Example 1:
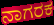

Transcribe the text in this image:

ನಾಗರಕ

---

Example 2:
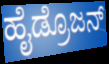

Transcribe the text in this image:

ಹೈಡ್ರೊಜನ್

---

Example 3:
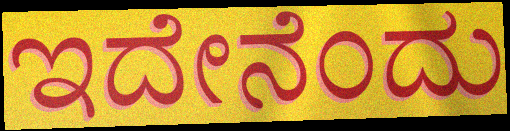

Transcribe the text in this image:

ಇದೇನೆಂದು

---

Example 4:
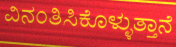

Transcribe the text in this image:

ವಿನಂತಿಸಿಕೊಳ್ಳುತ್ತಾನೆ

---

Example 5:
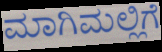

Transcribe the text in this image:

ಮಾಗಿಮಲ್ಲಿಗೆ